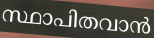
സ്ഥാപിതവാൻ